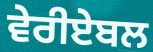
ਵੇਰੀਏਬਲ